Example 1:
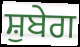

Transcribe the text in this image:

ਸ਼ੁਬੇਗ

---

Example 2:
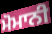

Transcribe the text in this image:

ਮੋਮਾਨੀ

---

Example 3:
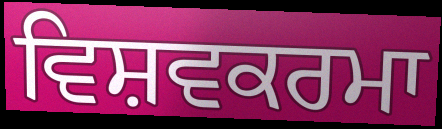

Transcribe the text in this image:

ਵਿਸ਼ਵਕਰਮਾ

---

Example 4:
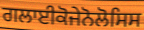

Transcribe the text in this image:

ਗਲਾਈਕੋਜੇਨੋਲੋਸਿਸ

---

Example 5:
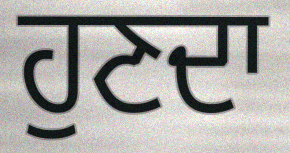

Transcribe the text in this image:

ਹੁਣਦਾ